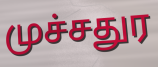
முச்சதுர